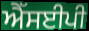
ਐੱਸਈਪੀ